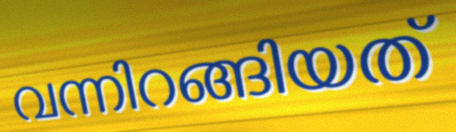
വന്നിറങ്ങിയത്